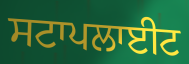
ਸਟਾਪਲਾਈਟ